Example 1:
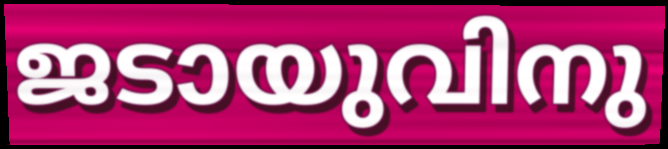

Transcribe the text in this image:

ജടായുവിനു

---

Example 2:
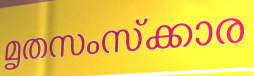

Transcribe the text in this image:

മൃതസംസ്‌ക്കാര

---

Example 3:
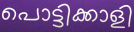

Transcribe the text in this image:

പൊട്ടിക്കാളി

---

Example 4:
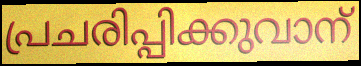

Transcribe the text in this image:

പ്രചരിപ്പിക്കുവാന്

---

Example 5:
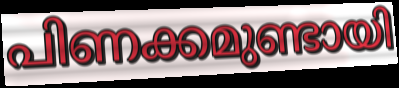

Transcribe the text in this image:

പിണക്കമുണ്ടായി